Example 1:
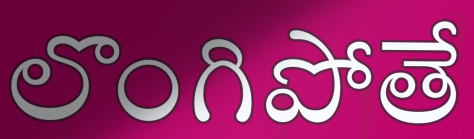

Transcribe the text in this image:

లొంగిపోతే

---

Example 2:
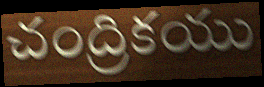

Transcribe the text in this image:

చంద్రికయు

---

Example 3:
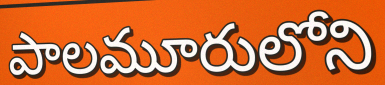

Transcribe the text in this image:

పాలమూరులోని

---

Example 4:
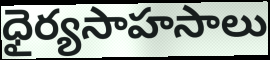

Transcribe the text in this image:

ధైర్యసాహసాలు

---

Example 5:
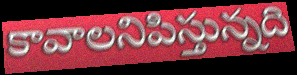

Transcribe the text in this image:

కావాలనిపిస్తున్నది